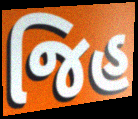
જિહ